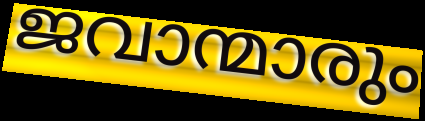
ജവാന്മാരും